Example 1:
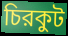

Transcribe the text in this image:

চিরকুট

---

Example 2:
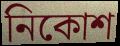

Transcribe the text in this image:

নিকোশ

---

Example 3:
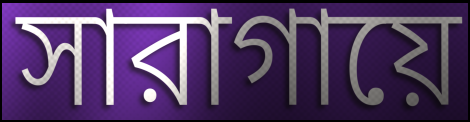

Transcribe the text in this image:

সারাগায়ে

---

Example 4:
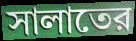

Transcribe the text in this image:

সালাতের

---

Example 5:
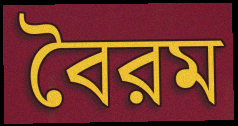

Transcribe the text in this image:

বৈরম